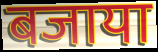
बजाया